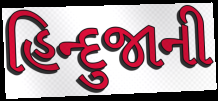
હિન્દુજાની